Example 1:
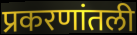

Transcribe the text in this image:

प्रकरणांतली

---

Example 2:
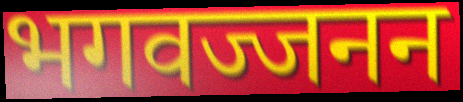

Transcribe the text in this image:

भगवज्जनन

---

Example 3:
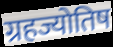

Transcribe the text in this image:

ग्रहज्योतिष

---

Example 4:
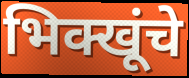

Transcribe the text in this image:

भिक्खूंचे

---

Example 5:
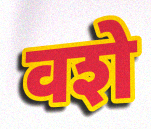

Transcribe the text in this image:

वशे